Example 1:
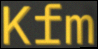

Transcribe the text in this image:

Kfm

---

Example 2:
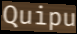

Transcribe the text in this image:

Quipu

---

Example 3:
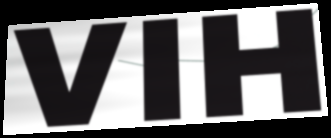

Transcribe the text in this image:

VIH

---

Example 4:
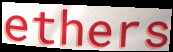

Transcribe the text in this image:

ethers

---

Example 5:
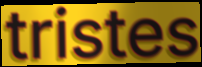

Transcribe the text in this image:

tristes